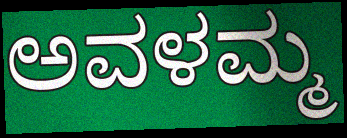
ಅವಳಮ್ಮ